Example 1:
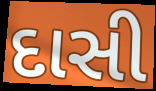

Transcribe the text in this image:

દાસી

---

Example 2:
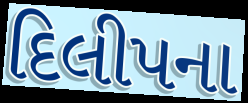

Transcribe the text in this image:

દિલીપના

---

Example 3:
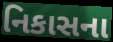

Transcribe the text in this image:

નિકાસના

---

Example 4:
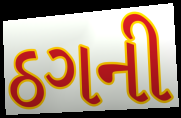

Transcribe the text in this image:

ઠગની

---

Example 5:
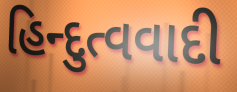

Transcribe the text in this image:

હિન્દુત્વવાદી